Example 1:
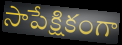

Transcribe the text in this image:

సాపేక్షికంగా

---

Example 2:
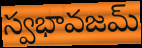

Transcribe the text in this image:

స్వభావజమ్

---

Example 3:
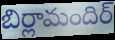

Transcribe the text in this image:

బిర్లామందిర్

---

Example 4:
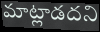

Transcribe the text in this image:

మాట్లాడదని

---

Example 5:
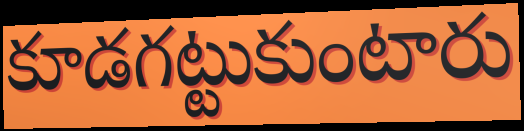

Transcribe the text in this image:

కూడగట్టుకుంటారు